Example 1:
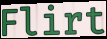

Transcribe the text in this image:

Flirt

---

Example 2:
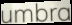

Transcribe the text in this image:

umbra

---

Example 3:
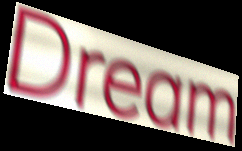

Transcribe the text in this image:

Dream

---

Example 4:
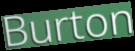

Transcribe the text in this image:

Burton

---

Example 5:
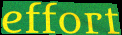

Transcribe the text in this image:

effort